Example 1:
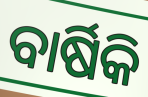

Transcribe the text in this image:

ବାର୍ଷିକି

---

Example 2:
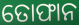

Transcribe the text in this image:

ତୋଫାନ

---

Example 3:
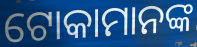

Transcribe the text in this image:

ଟୋକାମାନଙ୍କ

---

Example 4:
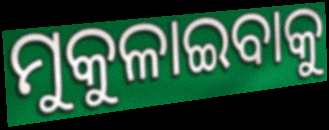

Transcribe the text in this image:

ମୁକୁଳାଇବାକୁ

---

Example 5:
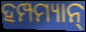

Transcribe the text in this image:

ହମ୍ପମ୍ୟାନ୍